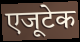
एजूटेक